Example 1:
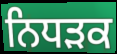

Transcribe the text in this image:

ਨਿਧਡ਼ਕ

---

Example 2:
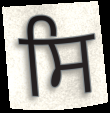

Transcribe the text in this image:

ਸਿ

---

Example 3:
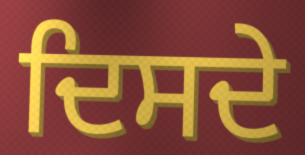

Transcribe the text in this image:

ਦਿਸਦੇ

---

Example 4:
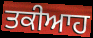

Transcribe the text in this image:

ਤਕੀਆਹ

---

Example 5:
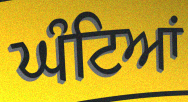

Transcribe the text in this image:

ਘੰਟਿਆਂ